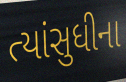
ત્યાંસુધીના